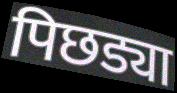
पिछड्या